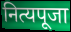
नित्यपूजा